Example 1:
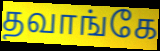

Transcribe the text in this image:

தவாங்கே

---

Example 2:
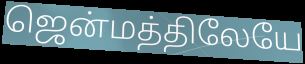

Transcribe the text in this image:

ஜென்மத்திலேயே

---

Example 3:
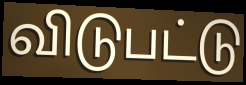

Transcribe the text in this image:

விடுபட்டு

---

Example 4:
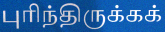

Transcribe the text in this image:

புரிந்திருக்கக்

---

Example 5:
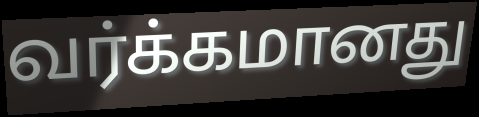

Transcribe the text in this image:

வர்க்கமானது